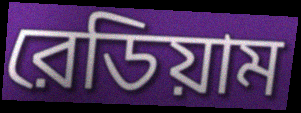
রেডিয়াম